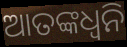
ଆତଙ୍କଧ୍ଵନି